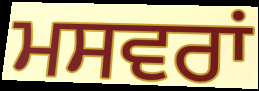
ਮਸਵਰਾਂ